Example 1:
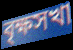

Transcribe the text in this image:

বৃক্ষসখা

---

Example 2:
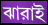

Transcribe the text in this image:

ঝারাই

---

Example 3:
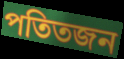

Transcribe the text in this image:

পতিতজন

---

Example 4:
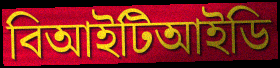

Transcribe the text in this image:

বিআইটিআইডি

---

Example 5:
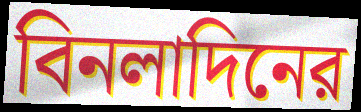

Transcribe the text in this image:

বিনলাদিনের